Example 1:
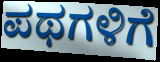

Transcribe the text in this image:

ಪಥಗಳಿಗೆ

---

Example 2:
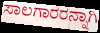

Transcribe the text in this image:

ಸಾಲಗಾರರನ್ನಾಗಿ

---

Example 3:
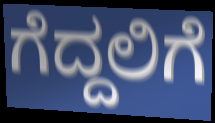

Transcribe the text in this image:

ಗೆದ್ದಲಿಗೆ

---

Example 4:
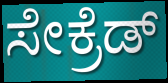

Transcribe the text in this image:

ಸೇಕ್ರೆಡ್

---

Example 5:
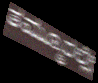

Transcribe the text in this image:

ತಮ್ಮೂರಲ್ಲೇ